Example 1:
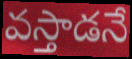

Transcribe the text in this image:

వస్తాడనే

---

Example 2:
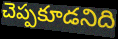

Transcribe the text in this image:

చెప్పకూడనిది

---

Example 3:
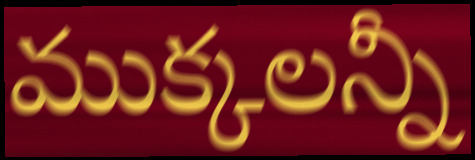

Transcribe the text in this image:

ముక్కలన్నీ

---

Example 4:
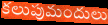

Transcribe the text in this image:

కలుపుమందులు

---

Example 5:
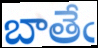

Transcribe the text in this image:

బాతేఁ